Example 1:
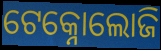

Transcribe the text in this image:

ଟେକ୍ନୋଲୋଜି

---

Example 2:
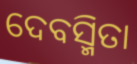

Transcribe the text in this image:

ଦେବସ୍ମିତା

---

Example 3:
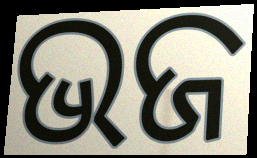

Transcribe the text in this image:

ଭଜ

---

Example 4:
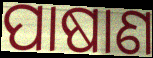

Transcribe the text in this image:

ପାଷାଣ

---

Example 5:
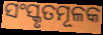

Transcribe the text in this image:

ସଂସ୍କୃତମୂଳକ